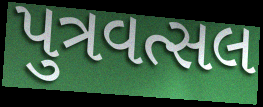
પુત્રવત્સલ